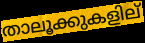
താലൂക്കുകളില്